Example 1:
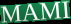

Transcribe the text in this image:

MAMI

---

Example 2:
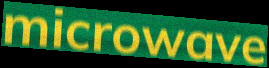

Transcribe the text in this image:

microwave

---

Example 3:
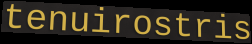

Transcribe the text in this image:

tenuirostris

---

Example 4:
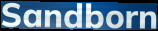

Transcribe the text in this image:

Sandborn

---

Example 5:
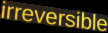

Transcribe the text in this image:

irreversible